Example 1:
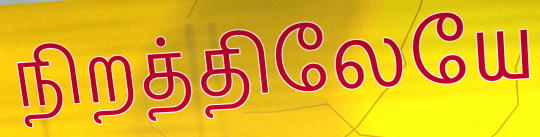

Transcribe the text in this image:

நிறத்திலேயே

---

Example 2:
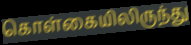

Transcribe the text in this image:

கொள்கையிலிருந்து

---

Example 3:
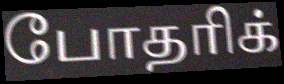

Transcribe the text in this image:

போதரிக்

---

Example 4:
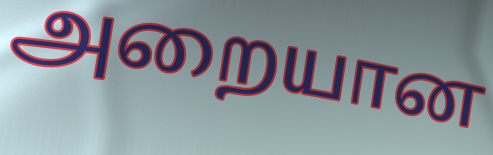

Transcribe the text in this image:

அறையான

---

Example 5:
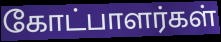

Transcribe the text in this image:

கோட்பாளர்கள்